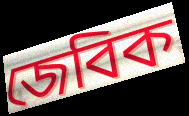
জেবিক